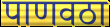
पाणवठा